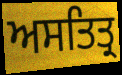
ਅਸਤਿਤ੍ਰ